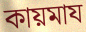
কায়মায